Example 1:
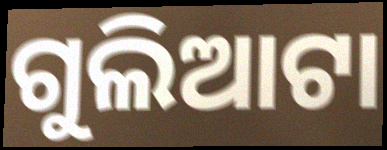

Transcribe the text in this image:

ଗୁଲିଆଟା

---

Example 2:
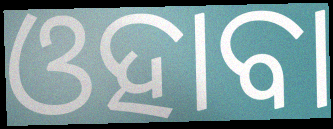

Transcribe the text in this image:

ଓହାବା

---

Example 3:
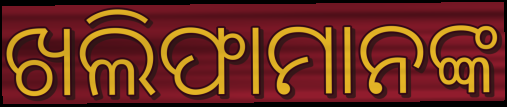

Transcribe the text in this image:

ଖଲିଫାମାନଙ୍କ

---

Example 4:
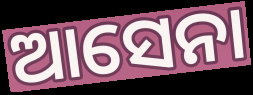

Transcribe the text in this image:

ଆସେନା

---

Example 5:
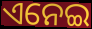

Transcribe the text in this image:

ଏନେଇ